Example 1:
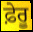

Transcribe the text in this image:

ਫ਼ੇਰੂ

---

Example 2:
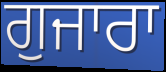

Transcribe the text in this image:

ਗੁਜਾਰਾ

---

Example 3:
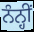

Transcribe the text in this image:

ਨੰਨ੍ਹੀਂ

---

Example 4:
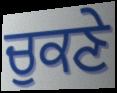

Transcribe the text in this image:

ਚੁਕਣੇ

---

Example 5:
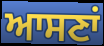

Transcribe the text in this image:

ਆਸਣਾਂ